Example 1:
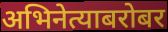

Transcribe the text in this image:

अभिनेत्याबरोबर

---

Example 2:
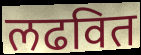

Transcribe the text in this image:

लढवित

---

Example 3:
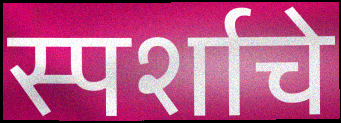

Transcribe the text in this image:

स्पर्शाचे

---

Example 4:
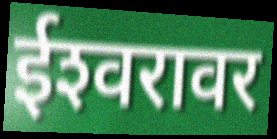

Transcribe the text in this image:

ईश्‍वरावर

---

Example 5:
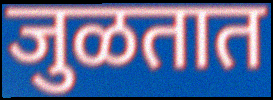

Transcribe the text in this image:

जुळतात